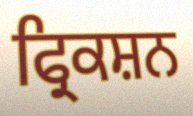
ਫ੍ਰਿਕਸ਼ਨ